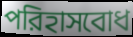
পরিহাসবোধ